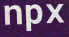
npx